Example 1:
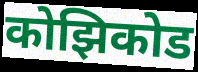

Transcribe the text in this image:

कोझिकोड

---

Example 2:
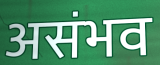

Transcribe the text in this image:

असंभव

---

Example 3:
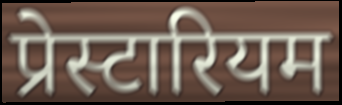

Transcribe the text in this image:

प्रेस्टारियम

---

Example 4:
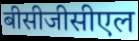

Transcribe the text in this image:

बीसीजीसीएल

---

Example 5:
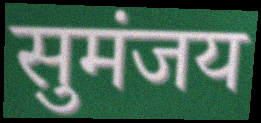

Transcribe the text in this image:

सुमंजय